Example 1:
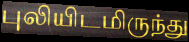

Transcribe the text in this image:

புலியிடமிருந்து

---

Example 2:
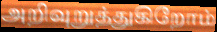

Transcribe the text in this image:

அறிவுறுத்துகிறோம்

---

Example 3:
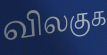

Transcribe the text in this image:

விலகுக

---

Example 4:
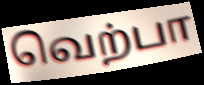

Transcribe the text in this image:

வெற்பா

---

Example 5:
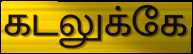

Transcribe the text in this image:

கடலுக்கே